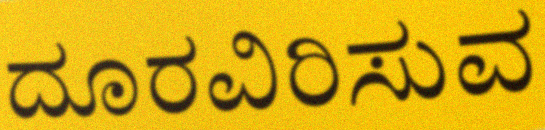
ದೂರವಿರಿಸುವ